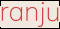
ranju